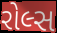
રોલ્સ